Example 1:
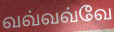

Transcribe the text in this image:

வவ்வவ்வே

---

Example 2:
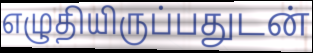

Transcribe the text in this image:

எழுதியிருப்பதுடன்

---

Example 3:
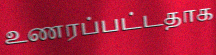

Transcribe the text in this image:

உணரப்பட்டதாக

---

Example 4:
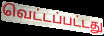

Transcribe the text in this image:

வெட்டப்பட்டது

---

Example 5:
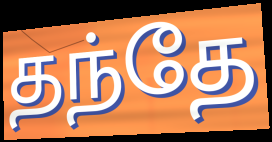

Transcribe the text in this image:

தந்தே